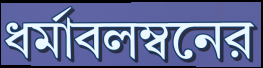
ধর্মাবলম্বনের